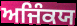
ਅਜਿੰਕਯ